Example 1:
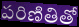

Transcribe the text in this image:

పరిణితితో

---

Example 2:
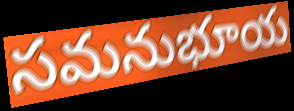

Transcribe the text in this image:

సమనుభూయ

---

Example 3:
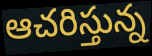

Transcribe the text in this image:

ఆచరిస్తున్న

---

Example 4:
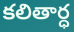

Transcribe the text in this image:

కలితార్ధ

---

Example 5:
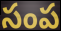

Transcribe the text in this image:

సంప